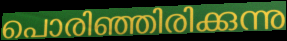
പൊരിഞ്ഞിരിക്കുന്നു